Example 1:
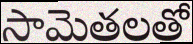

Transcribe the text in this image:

సామెతలతో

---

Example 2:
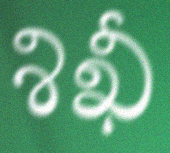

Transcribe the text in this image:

శిఖీ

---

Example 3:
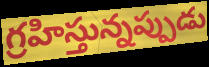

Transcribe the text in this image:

గ్రహిస్తున్నప్పుడు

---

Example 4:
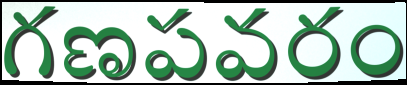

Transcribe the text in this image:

గణపవరం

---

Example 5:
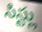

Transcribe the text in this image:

సిస్ట్లు